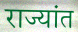
राज्यांत